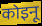
कोइनू